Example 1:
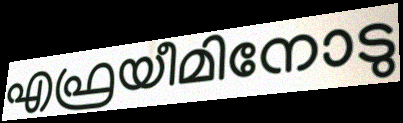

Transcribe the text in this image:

എഫ്രയീമിനോടു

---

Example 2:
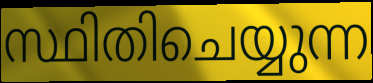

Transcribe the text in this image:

സ്ഥിതിചെയ്യുന്ന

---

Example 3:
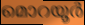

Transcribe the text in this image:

മൊറയൂർ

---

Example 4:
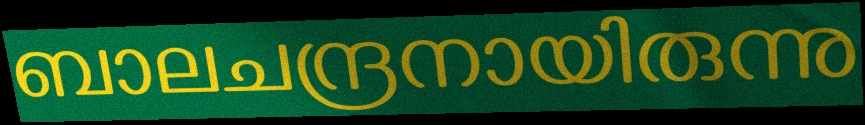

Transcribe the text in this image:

ബാലചന്ദ്രനായിരുന്നു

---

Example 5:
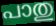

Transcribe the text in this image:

പാതു